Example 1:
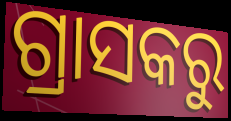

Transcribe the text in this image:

ଗ୍ରାସକରୁ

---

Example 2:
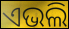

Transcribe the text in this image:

ଏଭଲି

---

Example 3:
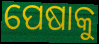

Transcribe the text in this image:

ପେଷାକୁ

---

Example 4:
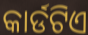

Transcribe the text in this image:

କାର୍ଡଟିଏ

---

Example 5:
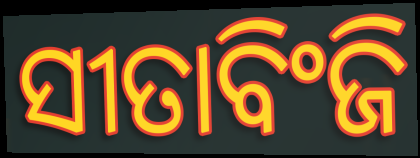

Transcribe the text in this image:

ସୀତାବିଂଜି